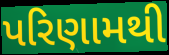
પરિણામથી